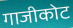
गाजीकोट